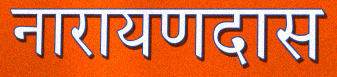
नारायणदास